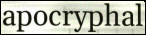
apocryphal